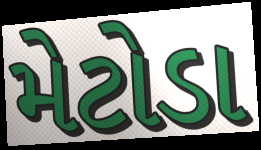
મેટોડા